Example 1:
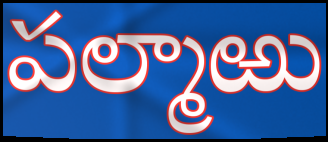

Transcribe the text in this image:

పల్మాఱు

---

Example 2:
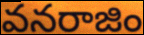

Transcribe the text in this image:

వనరాజిం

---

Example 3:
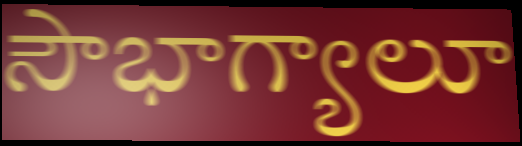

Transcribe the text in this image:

సౌభాగ్యాలూ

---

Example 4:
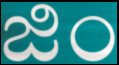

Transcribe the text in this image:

జిం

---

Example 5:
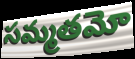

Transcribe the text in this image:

సమ్మతమో